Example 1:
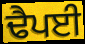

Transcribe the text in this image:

ਢੈਪਈ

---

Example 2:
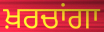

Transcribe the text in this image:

ਖ਼ਰਚਾਂਗਾ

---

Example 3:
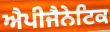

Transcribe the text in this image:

ਐਪੀਜੈਨੇਟਿਕ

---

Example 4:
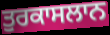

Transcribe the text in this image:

ਤੁਰਕਾਸਲਾਨ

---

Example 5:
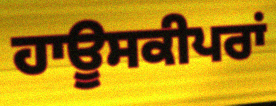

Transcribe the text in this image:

ਹਾਊਸਕੀਪਰਾਂ